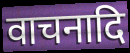
वाचनादि